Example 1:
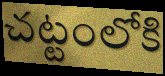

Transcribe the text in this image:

చట్టంలోకి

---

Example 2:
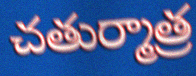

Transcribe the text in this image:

చతుర్మాత్ర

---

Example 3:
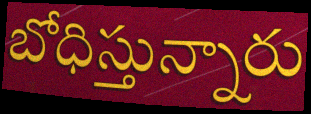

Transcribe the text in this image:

బోధిస్తున్నారు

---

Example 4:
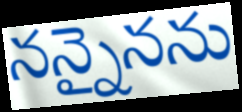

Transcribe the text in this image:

నన్నైనను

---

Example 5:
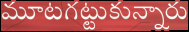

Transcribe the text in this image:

మూటగట్టుకున్నారు